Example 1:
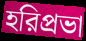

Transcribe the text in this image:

হরিপ্রভা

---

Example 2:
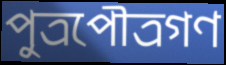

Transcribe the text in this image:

পুত্রপৌত্রগণ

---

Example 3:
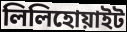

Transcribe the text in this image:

লিলিহোয়াইট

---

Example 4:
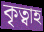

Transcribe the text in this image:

কৃত্বাহ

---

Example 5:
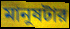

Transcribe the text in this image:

মানুষটার